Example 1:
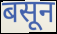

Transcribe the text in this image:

बसून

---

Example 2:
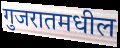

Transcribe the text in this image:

गुजरातमधील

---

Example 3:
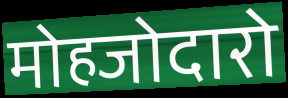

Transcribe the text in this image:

मोहजोदारो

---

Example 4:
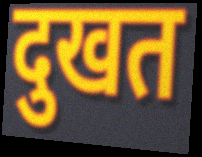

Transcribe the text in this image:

दुखत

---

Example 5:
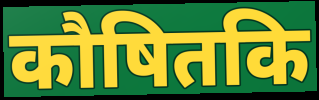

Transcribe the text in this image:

कौषितकि